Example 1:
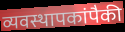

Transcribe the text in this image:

व्यवस्थापकांपैकी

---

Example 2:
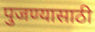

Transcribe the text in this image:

पुजण्यासाठी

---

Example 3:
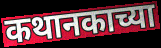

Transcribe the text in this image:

कथानकाच्या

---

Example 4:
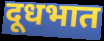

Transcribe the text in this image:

दूधभात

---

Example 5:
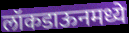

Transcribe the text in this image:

लॉकडाऊनमध्ये